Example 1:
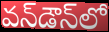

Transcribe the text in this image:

వన్‌డౌన్‌లో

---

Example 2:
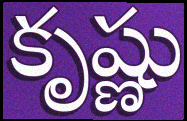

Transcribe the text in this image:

కృష్ణు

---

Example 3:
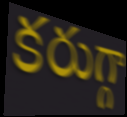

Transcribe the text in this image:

కరుగ్గా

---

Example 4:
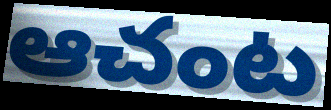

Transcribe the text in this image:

ఆచంట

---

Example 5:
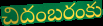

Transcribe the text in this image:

చిదంబరంకు